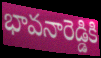
భావనారెడ్డికి